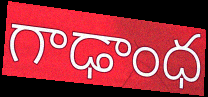
గాఢాంధ